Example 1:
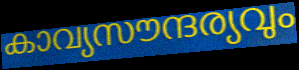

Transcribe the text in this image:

കാവ്യസൗന്ദര്യവും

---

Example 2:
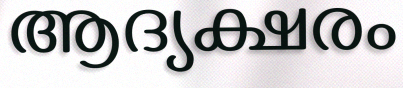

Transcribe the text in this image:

ആദ്യക്ഷരം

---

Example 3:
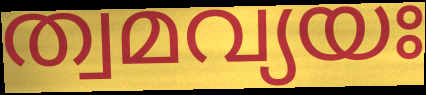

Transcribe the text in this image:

ത്വമവ്യയഃ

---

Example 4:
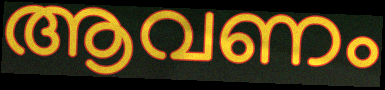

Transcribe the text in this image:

ആവണം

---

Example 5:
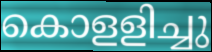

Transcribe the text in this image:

കൊളളിച്ചു